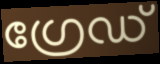
ഗ്രേഡ്